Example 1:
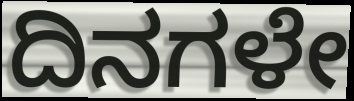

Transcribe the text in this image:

ದಿನಗಳೇ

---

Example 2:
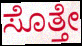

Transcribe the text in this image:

ಸೊತ್ತೇ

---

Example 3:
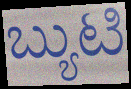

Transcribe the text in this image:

ಬ್ಯುಟಿ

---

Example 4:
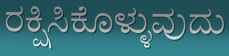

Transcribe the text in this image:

ರಕ್ಷಿಸಿಕೊಳ್ಳುವುದು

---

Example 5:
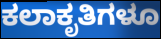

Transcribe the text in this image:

ಕಲಾಕೃತಿಗಳೂ